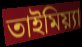
তাইমিয়্যা